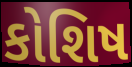
કોશિષ